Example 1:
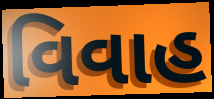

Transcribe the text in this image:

વિવાહ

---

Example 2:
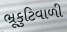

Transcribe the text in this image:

ભ્રૂકુટિવાળી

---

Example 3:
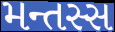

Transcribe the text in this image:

મન્તસ્સ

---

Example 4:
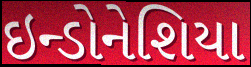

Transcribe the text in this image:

ઇન્ડોનેશિયા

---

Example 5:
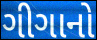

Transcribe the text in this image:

ગીગાનો